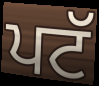
ਪਟੱ